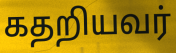
கதறியவர்